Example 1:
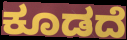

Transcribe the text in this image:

ಕೂಡದೆ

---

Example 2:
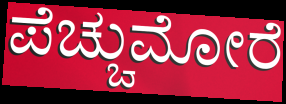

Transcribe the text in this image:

ಪೆಚ್ಚುಮೋರೆ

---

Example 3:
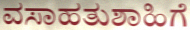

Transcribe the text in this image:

ವಸಾಹತುಶಾಹಿಗೆ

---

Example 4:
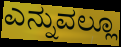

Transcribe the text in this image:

ಎನ್ನುವಲ್ಲೂ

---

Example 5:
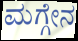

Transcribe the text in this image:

ಮಗ್ಗೇನ